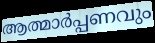
ആത്മാർപ്പണവും